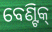
ବେଣ୍ଟିକ୍